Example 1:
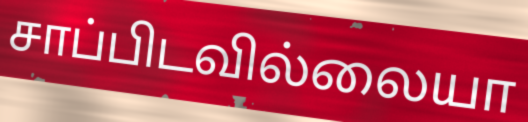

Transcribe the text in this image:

சாப்பிடவில்லையா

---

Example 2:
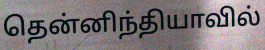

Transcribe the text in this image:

தென்னிந்தியாவில்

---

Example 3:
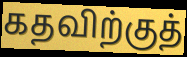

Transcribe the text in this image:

கதவிற்குத்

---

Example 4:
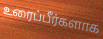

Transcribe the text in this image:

உரைப்பீர்களாக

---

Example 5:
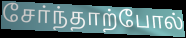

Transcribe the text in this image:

சேர்ந்தாற்போல்